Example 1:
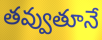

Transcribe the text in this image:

తవ్వుతూనే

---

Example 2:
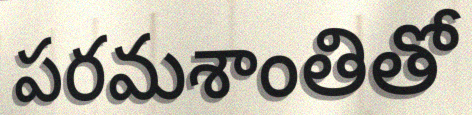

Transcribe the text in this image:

పరమశాంతితో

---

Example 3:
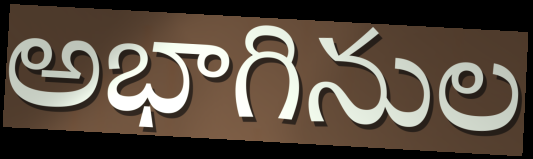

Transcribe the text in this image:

అభాగినుల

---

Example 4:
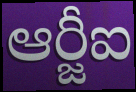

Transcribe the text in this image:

ఆర్జీఐ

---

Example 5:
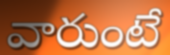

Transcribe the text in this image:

వారుంటే